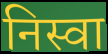
निस्वा